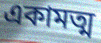
একামত্ম